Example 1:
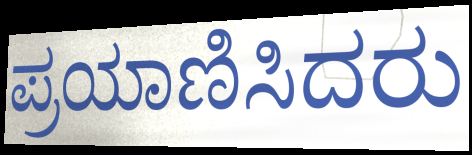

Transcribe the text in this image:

ಪ್ರಯಾಣಿಸಿದರು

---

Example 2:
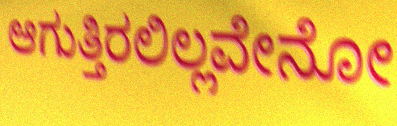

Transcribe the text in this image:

ಆಗುತ್ತಿರಲಿಲ್ಲವೇನೋ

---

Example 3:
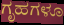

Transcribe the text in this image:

ಗೃಹಗಳೂ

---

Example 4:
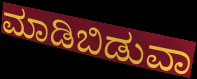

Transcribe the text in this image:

ಮಾಡಿಬಿಡುವಾ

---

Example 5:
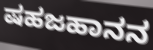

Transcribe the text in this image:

ಷಹಜಹಾನನ